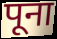
पूना